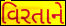
વિરતાને